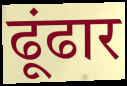
ढूंढार